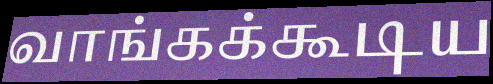
வாங்கக்கூடிய